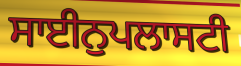
ਸਾਈਨੁਪਲਾਸਟੀ